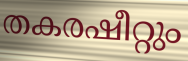
തകരഷീറ്റും